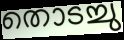
തൊടച്ചു